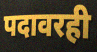
पदावरही